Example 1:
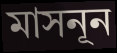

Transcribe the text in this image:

মাসনূন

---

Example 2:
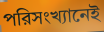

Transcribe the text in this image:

পরিসংখ্যানেই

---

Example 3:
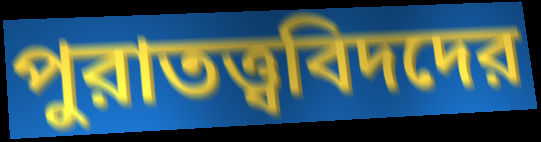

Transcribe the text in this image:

পুরাতত্ত্ববিদদের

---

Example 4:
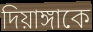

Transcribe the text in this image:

দিয়াঙ্গাকে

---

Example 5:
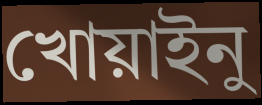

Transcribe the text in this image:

খোয়াইনু